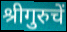
श्रीगुरुचें